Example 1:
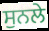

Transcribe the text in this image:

ਸੁਨਲੇ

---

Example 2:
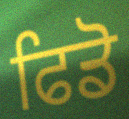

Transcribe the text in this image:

ਫਿਡੋ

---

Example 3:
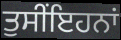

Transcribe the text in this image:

ਤੁਸੀਂਇਹਨਾਂ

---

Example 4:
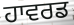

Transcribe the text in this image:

ਹਾਵਰਡ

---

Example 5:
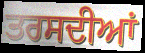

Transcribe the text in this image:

ਤਰਸਦੀਆਂ